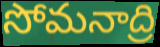
సోమనాద్రి